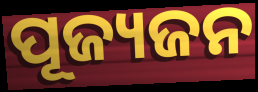
ପୂଜ୍ୟଜନ